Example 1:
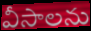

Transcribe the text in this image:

వీసాలను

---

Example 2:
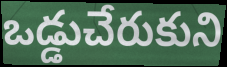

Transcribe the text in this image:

ఒడ్డుచేరుకుని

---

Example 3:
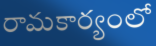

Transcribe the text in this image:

రామకార్యంలో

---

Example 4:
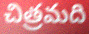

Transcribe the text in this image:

చిత్రమది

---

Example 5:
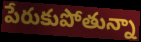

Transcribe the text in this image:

పేరుకుపోతున్నా